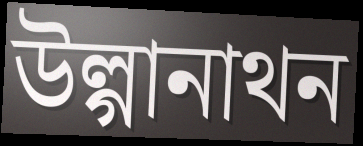
উল্গানাথন